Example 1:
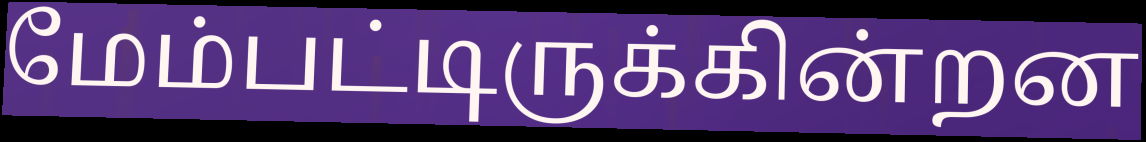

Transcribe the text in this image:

மேம்பட்டிருக்கின்றன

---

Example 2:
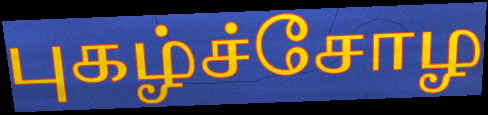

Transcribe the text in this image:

புகழ்ச்சோழ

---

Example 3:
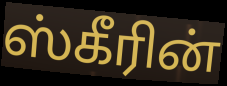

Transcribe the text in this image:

ஸ்கீரின்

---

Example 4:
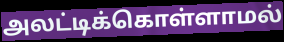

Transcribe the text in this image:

அலட்டிக்கொள்ளாமல்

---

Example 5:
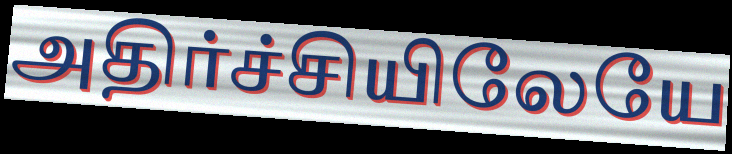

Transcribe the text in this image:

அதிர்ச்சியிலேயே